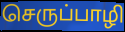
செருப்பாழி